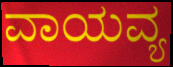
ವಾಯವ್ಯ